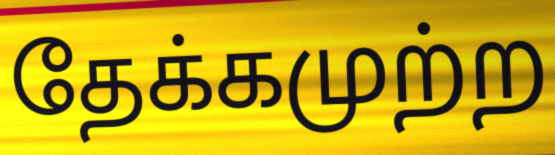
தேக்கமுற்ற